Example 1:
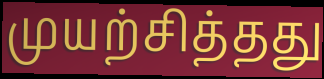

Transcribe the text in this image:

முயற்சித்தது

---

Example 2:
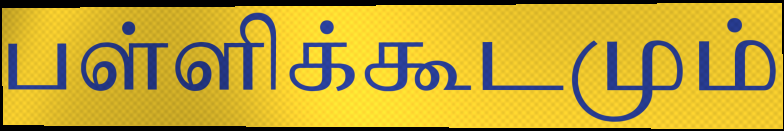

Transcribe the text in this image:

பள்ளிக்கூடமும்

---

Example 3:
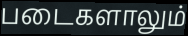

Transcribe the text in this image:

படைகளாலும்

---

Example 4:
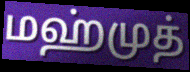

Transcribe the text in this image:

மஹ்முத்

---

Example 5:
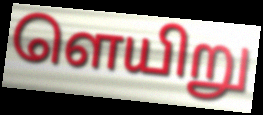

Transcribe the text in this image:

ளெயிறு